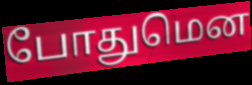
போதுமென